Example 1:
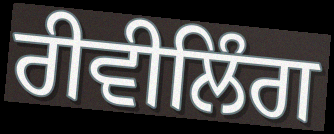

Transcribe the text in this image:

ਰੀਵੀਲਿੰਗ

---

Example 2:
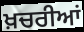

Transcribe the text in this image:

ਖ਼ਚਰੀਆਂ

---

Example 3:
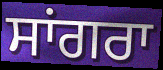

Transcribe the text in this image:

ਸਾਂਗਰਾ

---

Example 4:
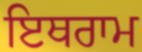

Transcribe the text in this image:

ਇਥਰਾਮ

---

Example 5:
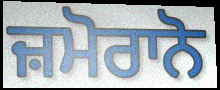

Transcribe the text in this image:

ਜ਼ਮੋਰਾਨੋ